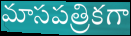
మాసపత్రికగా